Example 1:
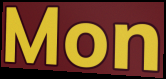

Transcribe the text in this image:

Mon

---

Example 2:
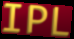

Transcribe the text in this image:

IPL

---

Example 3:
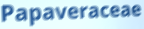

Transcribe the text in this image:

Papaveraceae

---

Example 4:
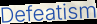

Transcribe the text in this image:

Defeatism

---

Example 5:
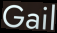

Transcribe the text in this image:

Gail